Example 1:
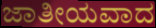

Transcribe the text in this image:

ಜಾತೀಯವಾದ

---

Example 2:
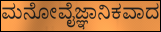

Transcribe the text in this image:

ಮನೋವೈಜ್ಞಾನಿಕವಾದ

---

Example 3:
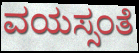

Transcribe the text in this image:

ವಯಸ್ಸಂತೆ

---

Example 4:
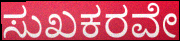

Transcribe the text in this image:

ಸುಖಕರವೇ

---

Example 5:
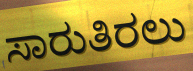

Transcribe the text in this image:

ಸಾರುತಿರಲು